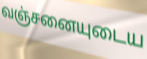
வஞ்சனையுடைய